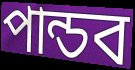
পান্ডব